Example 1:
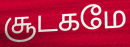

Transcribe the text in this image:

சூடகமே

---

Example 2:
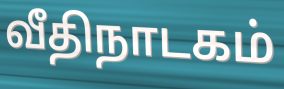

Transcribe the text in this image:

வீதிநாடகம்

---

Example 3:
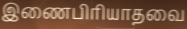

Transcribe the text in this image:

இணைபிரியாதவை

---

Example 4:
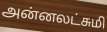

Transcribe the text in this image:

அன்னலட்சுமி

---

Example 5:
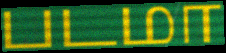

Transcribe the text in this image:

படமா